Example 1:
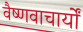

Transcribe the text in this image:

वैष्णवाचार्यों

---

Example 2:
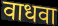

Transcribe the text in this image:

वाधवा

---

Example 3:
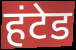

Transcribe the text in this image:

हंटेड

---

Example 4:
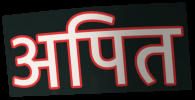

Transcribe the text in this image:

अपित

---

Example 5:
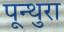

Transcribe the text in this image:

पून्थुरा